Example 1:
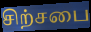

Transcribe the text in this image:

சிற்சபை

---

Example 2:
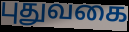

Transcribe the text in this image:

புதுவகை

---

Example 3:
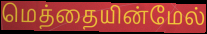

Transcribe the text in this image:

மெத்தையின்மேல்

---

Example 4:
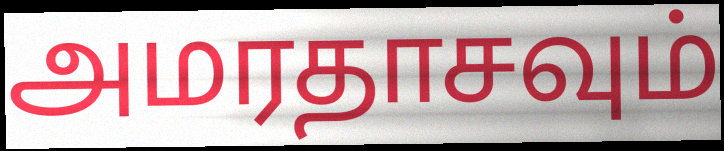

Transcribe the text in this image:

அமரதாசவும்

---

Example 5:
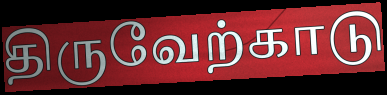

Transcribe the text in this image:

திருவேற்காடு